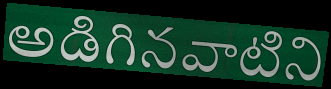
అడిగినవాటిని